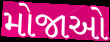
મોજાઓ